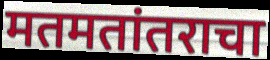
मतमतांतराचा